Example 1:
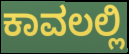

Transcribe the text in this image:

ಕಾವಲಲ್ಲಿ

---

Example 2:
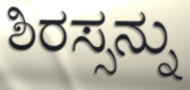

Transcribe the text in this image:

ಶಿರಸ್ಸನ್ನು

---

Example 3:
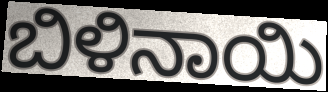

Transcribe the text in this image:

ಬಿಳಿನಾಯಿ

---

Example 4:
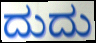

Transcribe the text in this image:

ದುದು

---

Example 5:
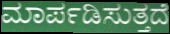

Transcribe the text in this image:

ಮಾರ್ಪಡಿಸುತ್ತದೆ